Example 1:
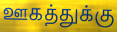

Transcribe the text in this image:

ஊகத்துக்கு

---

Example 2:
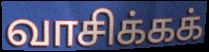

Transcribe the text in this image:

வாசிக்கக்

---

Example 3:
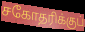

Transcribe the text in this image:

சகோதரிக்குப்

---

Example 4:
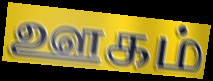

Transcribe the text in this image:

ஊகம்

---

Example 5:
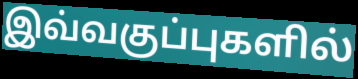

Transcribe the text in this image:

இவ்வகுப்புகளில்